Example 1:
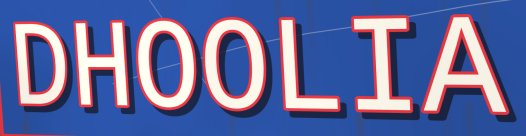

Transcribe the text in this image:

DHOOLIA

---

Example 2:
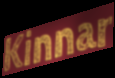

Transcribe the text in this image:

Kinnar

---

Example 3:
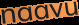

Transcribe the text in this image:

naavu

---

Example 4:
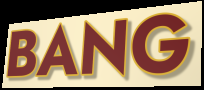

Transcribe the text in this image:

BANG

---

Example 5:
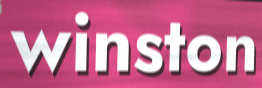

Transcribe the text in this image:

winston